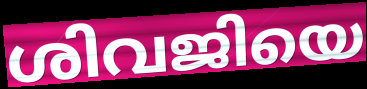
ശിവജിയെ